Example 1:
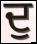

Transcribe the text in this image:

ਦੁ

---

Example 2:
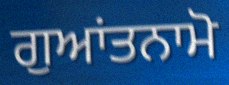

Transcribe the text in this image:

ਗੁਆਂਤਨਾਮੋ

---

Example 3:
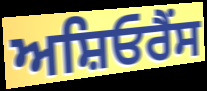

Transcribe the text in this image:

ਅਸ਼ਿਓਰੈਂਸ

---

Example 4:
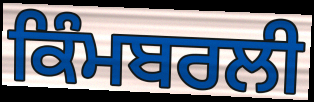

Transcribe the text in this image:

ਕਿੰਮਬਰਲੀ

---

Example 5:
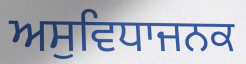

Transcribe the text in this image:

ਅਸੁਵਿਧਾਜਨਕ